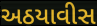
અઠયાવીસ